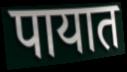
पायात